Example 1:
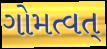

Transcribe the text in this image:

ગોમત્વત્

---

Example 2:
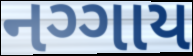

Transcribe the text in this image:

નગ્ગાય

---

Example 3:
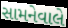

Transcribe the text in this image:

સામનેવાલે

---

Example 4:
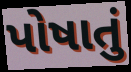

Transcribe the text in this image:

પોષાતું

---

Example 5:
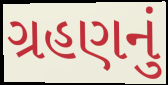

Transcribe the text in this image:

ગ્રહણનું